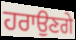
ਹਰਾਉਣਗੇ